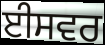
ਈਸਵਰ